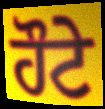
ਹੌਟੇ